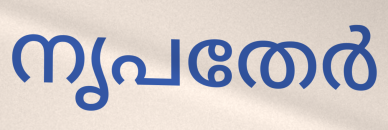
നൃപതേർ